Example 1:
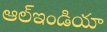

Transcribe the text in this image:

ఆల్ఇండియా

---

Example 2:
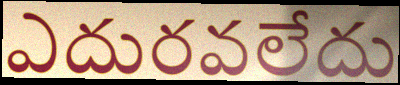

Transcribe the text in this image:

ఎదురవలేదు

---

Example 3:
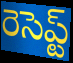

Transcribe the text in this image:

రెసెప్ట్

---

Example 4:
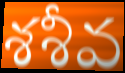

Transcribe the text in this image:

శశీవ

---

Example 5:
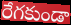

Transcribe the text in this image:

రేగకుండా